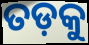
ତଡ଼କୁ